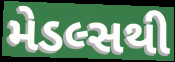
મેડલ્સથી